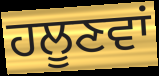
ਹਲੂਣਵਾਂ